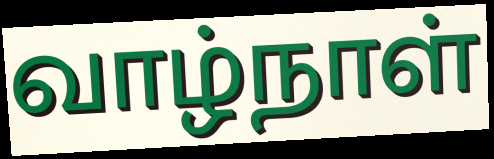
வாழ்நாள்